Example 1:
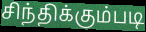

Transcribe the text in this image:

சிந்திக்கும்படி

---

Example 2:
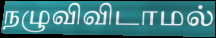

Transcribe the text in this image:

நழுவிவிடாமல்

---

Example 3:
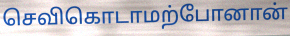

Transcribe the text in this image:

செவிகொடாமற்போனான்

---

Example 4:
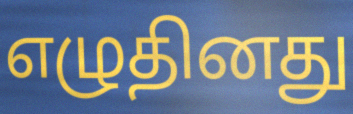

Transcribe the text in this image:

எழுதினது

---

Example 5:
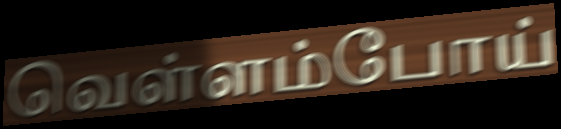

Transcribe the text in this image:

வெள்ளம்போய்